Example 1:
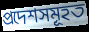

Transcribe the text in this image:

প্ৰদেশসমূহত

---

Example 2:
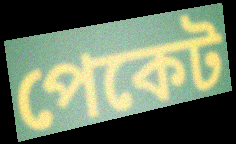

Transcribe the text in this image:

পেকেট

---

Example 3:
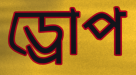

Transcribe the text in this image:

ড্ৰোপ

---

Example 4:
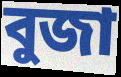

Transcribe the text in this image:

বুজা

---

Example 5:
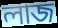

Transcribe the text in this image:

লাজ